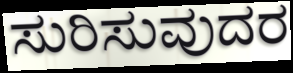
ಸುರಿಸುವುದರ